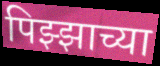
पिझ्झाच्या